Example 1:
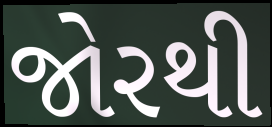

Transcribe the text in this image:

જોરથી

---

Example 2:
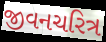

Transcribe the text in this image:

જીવનચરિત્ર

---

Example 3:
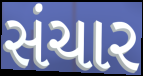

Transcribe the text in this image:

સંચાર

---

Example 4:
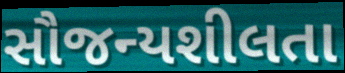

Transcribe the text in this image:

સૌજન્યશીલતા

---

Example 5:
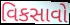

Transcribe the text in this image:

વિકસાવો